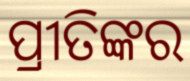
ପ୍ରୀତିଙ୍କର